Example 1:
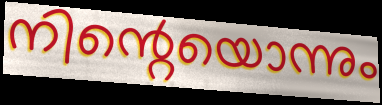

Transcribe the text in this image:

നിന്റെയൊന്നും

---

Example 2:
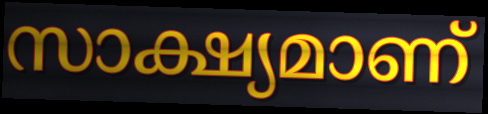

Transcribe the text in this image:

സാക്ഷ്യമാണ്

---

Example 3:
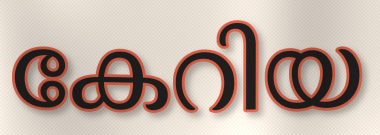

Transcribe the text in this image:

കേറിയ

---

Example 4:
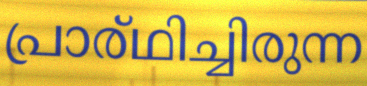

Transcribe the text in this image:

പ്രാര്ഥിച്ചിരുന്ന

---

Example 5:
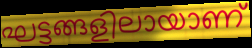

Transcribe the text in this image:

ഘട്ടങ്ങളിലായാണ്